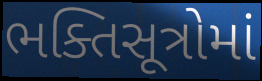
ભક્તિસૂત્રોમાં